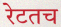
रेटतच